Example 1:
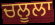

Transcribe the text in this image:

ਚਲੂਲਾ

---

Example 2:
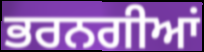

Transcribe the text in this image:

ਭਰਨਗੀਆਂ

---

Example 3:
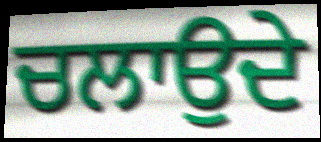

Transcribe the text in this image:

ਚਲਾਉਦੇ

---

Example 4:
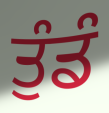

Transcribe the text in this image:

ਤੁੰਡੰ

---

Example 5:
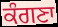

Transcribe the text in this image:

ਕੰਗਣਾ